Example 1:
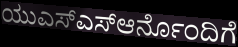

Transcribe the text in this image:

ಯುಎಸ್ಎಸ್ಆರ್ನೊಂದಿಗೆ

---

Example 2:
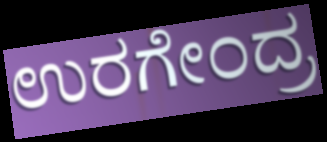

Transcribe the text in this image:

ಉರಗೇಂದ್ರ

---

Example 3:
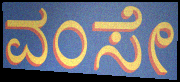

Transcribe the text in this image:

ವಂಸೇ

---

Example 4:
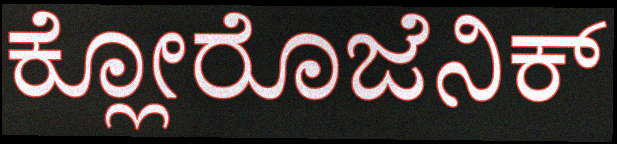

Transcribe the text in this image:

ಕ್ಲೋರೊಜೆನಿಕ್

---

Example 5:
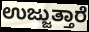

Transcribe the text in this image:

ಉಜ್ಜುತ್ತಾರೆ